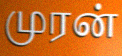
முரன்